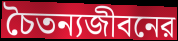
চৈতন্যজীবনের